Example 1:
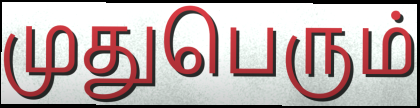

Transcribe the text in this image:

முதுபெரும்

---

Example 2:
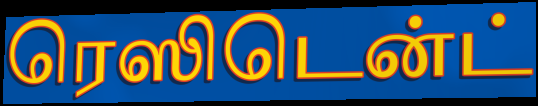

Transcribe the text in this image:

ரெஸிடென்ட்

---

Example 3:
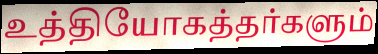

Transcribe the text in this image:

உத்தியோகத்தர்களும்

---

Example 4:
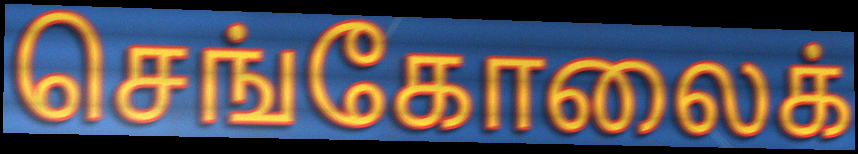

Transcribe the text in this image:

செங்கோலைக்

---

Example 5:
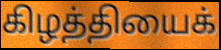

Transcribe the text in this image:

கிழத்தியைக்